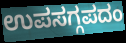
ಉಪಸಗ್ಗಪದಂ